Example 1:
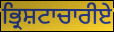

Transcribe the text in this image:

ਭ੍ਰਿਸ਼ਟਾਚਾਰੀਏ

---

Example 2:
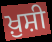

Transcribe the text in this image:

ਖ਼ੁਸ਼ੀ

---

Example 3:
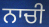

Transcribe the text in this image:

ਨਾਚੀ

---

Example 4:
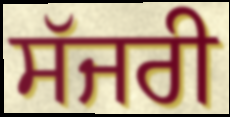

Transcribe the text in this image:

ਸੱਜਰੀ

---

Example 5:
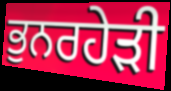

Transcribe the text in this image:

ਭੁਨਰਹੇੜੀ